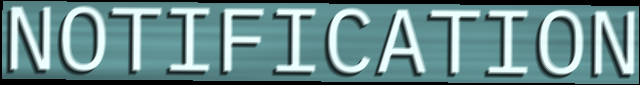
NOTIFICATION